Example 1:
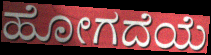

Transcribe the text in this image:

ಹೋಗದೆಯೆ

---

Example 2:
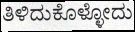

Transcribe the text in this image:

ತಿಳಿದುಕೊಳ್ಳೋದು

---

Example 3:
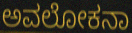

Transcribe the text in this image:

ಅವಲೋಕನಾ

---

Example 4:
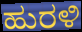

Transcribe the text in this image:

ಹುರಳಿ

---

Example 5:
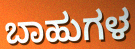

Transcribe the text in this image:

ಬಾಹುಗಳ